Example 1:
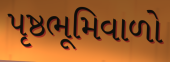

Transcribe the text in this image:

પૃષ્ઠભૂમિવાળો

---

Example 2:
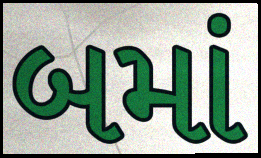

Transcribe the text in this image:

બમાં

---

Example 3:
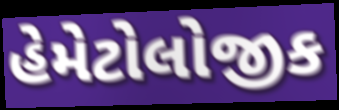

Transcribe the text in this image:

હેમેટોલોજીક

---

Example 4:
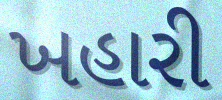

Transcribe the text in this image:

ખહારી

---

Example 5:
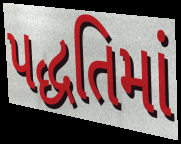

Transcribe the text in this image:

પદ્ધતિમાં